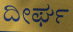
ದೀರ್ಘ